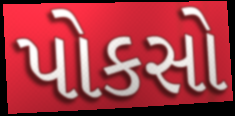
પોકસો